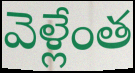
వెళ్లేంత